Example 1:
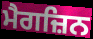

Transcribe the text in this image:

ਮੈਗਜ਼ਿਨ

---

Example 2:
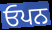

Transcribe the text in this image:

ਓਪਨ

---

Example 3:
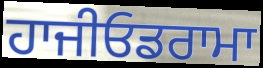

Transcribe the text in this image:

ਹਾਜੀਓਡਰਾਮਾ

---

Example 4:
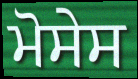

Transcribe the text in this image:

ਮੋਸੇਸ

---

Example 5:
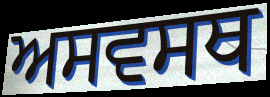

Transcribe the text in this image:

ਅਸਵਸਥ